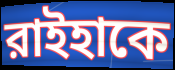
রাইহাকে